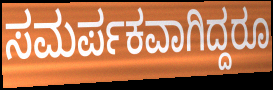
ಸಮರ್ಪಕವಾಗಿದ್ದರೂ